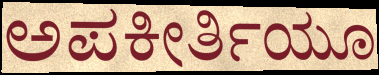
ಅಪಕೀರ್ತಿಯೂ